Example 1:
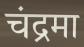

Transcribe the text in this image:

चंद्रमा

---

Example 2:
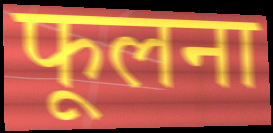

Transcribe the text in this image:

फूलना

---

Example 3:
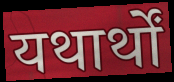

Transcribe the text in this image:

यथार्थों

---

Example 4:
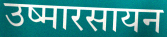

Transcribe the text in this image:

उष्मारसायन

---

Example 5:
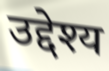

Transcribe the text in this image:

उद्देश्य